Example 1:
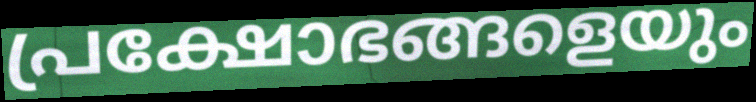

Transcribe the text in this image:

പ്രക്ഷോഭങ്ങളെയും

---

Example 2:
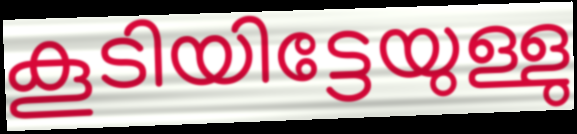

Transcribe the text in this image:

കൂടിയിട്ടേയുള്ളു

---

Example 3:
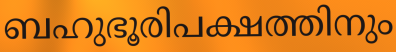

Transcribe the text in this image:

ബഹുഭൂരിപക്ഷത്തിനും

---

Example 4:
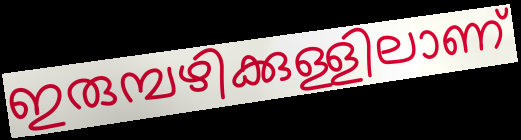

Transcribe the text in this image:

ഇരുമ്പഴിക്കുള്ളിലാണ്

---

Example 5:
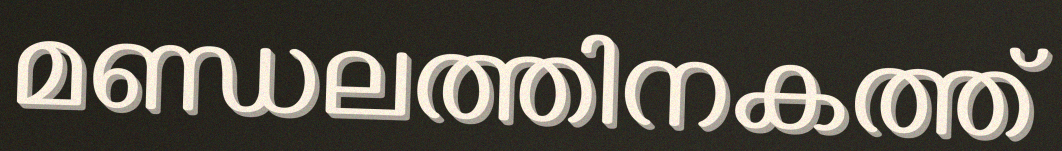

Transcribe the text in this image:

മണ്ഡലത്തിനകത്ത്